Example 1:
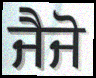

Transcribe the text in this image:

ਜੈਜੋ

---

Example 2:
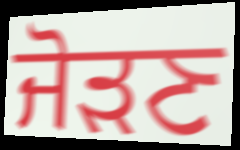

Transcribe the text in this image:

ਜੋੜਣ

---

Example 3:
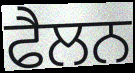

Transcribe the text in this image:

ਫੈਲਨ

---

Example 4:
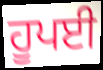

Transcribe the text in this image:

ਹੂਪਈ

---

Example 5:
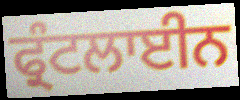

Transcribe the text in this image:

ਫ੍ਰੰਟਲਾਈਨ